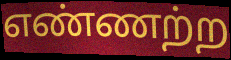
எண்ணற்ற